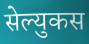
सेल्युकस